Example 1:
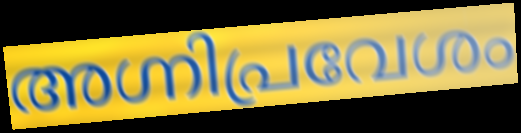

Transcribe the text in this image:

അഗ്നിപ്രവേശം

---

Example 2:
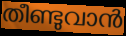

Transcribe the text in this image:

തീണ്ടുവാൻ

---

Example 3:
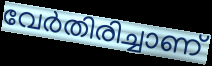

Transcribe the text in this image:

വേർതിരിച്ചാണ്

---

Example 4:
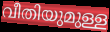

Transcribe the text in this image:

വീതിയുമുള്ള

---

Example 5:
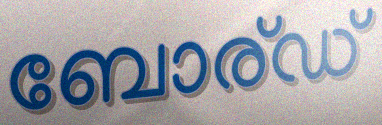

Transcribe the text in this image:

ബോര്ഡ്